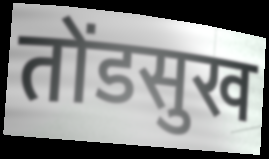
तोंडसुख